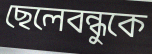
ছেলেবন্ধুকে